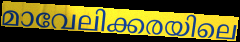
മാവേലിക്കരയിലെ